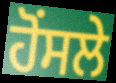
ਹੋਂਸਲੇ